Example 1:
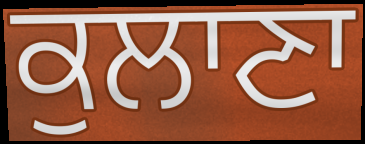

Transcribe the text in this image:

ਕੁਲਾਣਾ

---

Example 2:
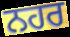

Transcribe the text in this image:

ਨਹਰ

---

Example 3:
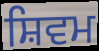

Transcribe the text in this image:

ਸ਼ਿਵਮ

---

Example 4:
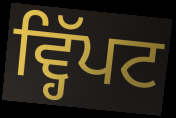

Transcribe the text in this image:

ਵ੍ਹਿੱਪਟ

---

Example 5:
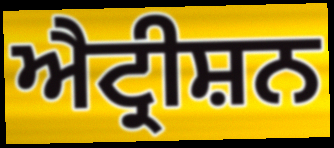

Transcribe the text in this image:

ਐਟ੍ਰੀਸ਼ਨ